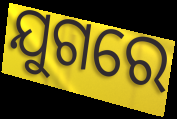
ଯୁଗରେ